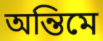
অন্তিমে